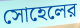
সোহেলের